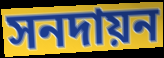
সনদায়ন